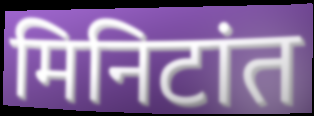
मिनिटांत